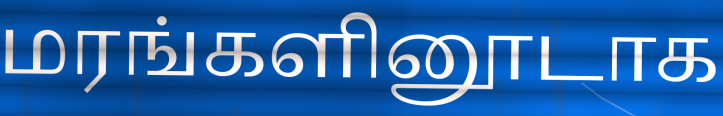
மரங்களினூடாக